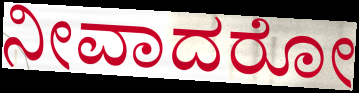
ನೀವಾದರೋ